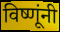
विष्णूंनी